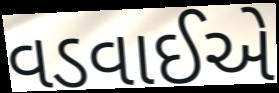
વડવાઈએ